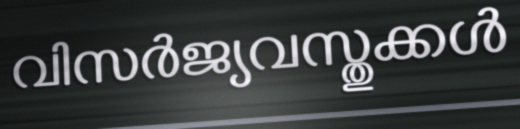
വിസർജ്യവസ്തുക്കൾ